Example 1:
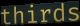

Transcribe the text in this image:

thirds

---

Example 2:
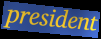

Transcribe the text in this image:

president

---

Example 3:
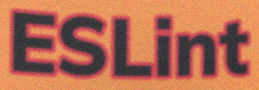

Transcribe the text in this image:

ESLint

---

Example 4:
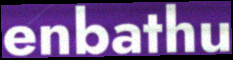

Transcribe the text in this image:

enbathu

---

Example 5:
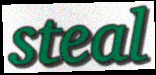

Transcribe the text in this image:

steal